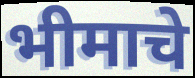
भीमाचे